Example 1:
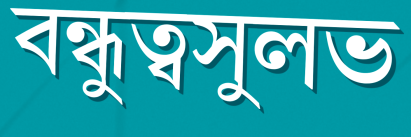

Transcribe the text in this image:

বন্ধুত্বসুলভ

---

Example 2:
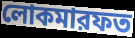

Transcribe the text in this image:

লোকমারফত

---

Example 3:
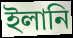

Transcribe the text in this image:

ইলানি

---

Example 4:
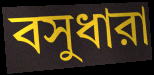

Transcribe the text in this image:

বসুধারা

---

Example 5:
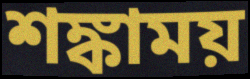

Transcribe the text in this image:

শঙ্কাময়